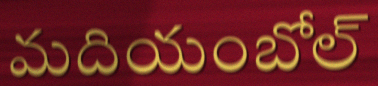
మదియంబోల్